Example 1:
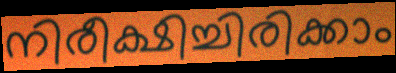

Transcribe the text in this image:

നിരീക്ഷിച്ചിരിക്കാം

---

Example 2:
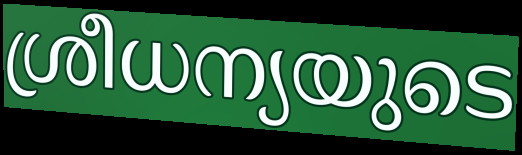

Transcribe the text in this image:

ശ്രീധന്യയുടെ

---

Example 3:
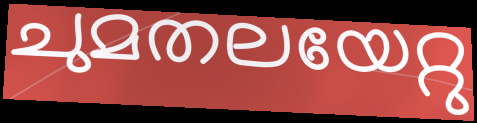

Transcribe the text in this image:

ചുമതലയേറ്റു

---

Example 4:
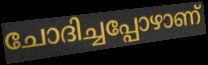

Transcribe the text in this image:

ചോദിച്ചപ്പോഴാണ്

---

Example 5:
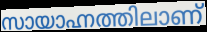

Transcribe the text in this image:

സായാഹ്നത്തിലാണ്